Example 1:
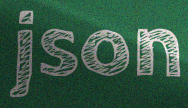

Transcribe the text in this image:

json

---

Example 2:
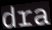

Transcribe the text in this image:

dra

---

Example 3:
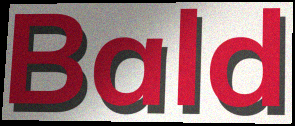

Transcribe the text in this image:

Bald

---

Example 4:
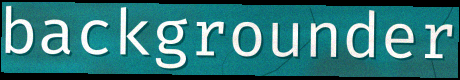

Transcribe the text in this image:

backgrounder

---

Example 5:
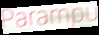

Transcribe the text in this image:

Parampu